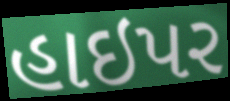
હાઇપર